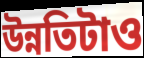
উন্নতিটাও